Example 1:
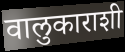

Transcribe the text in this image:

वालुकाराशी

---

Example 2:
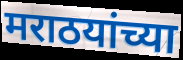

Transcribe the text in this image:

मराठयांच्या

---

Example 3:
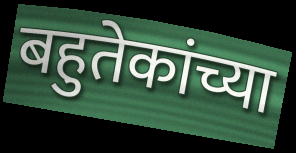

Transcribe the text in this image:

बहुतेकांच्या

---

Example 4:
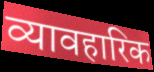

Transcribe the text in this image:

व्यावहारिक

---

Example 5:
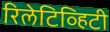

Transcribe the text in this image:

रिलेटिव्हिटी